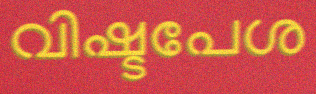
വിഷ്ടപേശ